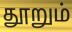
தூறும்